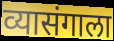
व्यासंगाला